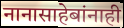
नानासाहेबांनाही